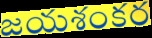
జయశంకర